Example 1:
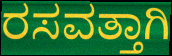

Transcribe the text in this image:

ರಸವತ್ತಾಗಿ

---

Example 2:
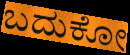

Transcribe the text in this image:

ಬದುಕೋ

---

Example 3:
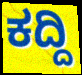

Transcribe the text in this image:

ಕದ್ದಿ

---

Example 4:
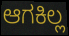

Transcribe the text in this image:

ಆಗಕಿಲ್ಲ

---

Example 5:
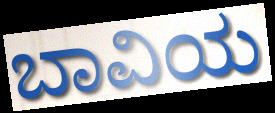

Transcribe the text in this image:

ಬಾವಿಯ